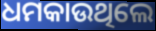
ଧମକାଉଥିଲେ